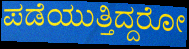
ಪಡೆಯುತ್ತಿದ್ದರೋ